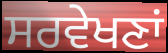
ਸਰਵੇਖਣਾਂ